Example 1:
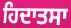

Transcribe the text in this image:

ਹਿਦਾਤਸਾ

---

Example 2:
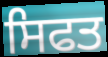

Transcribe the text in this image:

ਸਿਫਤ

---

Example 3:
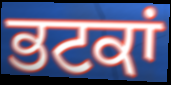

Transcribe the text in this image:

ਭਟਕਾਂ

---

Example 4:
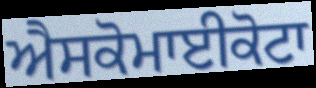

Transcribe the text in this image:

ਐਸਕੋਮਾਈਕੋਟਾ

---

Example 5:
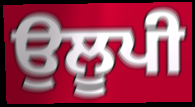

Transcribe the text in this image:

ਉਲੂਪੀ